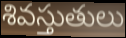
శివస్తుతులు